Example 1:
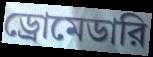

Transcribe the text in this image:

ড্রোমেডারি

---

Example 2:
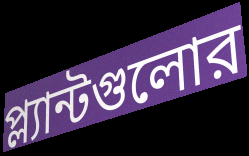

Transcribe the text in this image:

প্ল্যান্টগুলোর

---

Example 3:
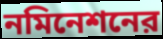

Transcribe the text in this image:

নমিনেশনের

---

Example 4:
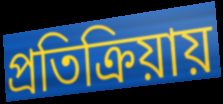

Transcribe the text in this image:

প্রতিক্রিয়ায়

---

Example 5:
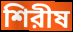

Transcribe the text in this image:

শিরীষ